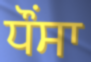
ਧੌਂਸਾ